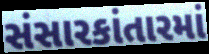
સંસારકાંતારમાં